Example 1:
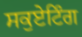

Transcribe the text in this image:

ਸਕੁਏਟਿੰਗ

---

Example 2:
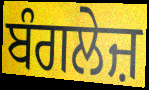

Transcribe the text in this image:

ਬੰਗਲੇਜ਼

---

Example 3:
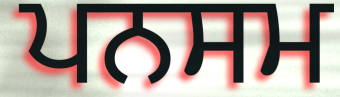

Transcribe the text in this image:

ਪਨਸਮ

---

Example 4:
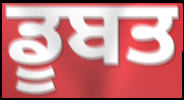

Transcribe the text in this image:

ਡੂਬਤ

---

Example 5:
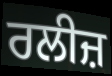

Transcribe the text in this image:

ਰਲੀਜ਼